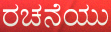
ರಚನೆಯು